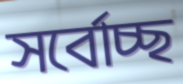
সৰ্বোচ্ছ